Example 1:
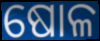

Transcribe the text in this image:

ଷୋଳ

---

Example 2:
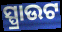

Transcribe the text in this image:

ସ୍ପ୍ରାଉଟ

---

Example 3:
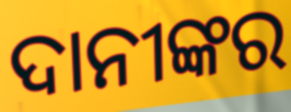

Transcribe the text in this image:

ଦାନୀଙ୍କର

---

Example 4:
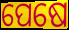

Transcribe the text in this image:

ପେଷେ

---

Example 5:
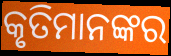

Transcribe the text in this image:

କୃତିମାନଙ୍କର